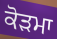
ਕੋੜਮਾ